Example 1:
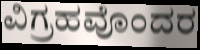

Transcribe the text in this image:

ವಿಗ್ರಹವೊಂದರ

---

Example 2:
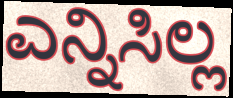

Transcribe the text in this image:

ಎನ್ನಿಸಿಲ್ಲ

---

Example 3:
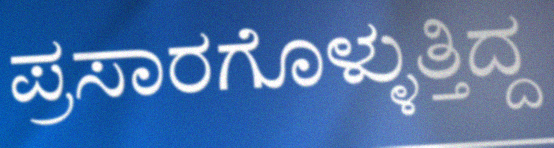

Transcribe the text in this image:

ಪ್ರಸಾರಗೊಳ್ಳುತ್ತಿದ್ದ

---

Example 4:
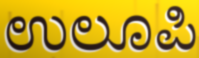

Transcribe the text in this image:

ಉಲೂಪಿ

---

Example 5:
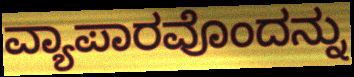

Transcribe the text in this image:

ವ್ಯಾಪಾರವೊಂದನ್ನು